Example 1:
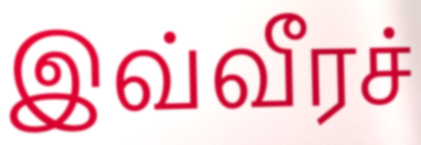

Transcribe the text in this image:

இவ்வீரச்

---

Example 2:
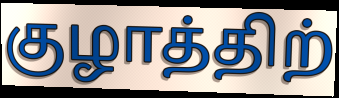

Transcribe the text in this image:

குழாத்திற்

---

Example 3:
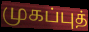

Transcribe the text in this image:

முகப்புத்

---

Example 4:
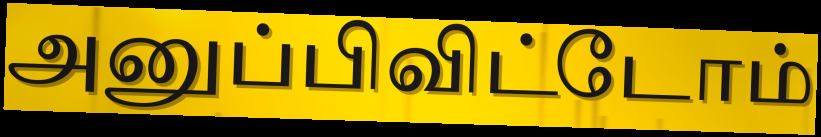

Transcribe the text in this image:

அனுப்பிவிட்டோம்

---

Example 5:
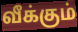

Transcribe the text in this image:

வீக்கும்